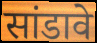
सांडावे